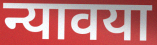
न्यावया